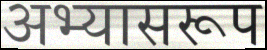
अभ्यासरूप